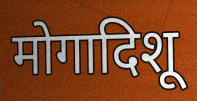
मोगादिशू